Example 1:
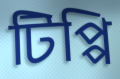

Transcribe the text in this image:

টিপ্পি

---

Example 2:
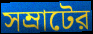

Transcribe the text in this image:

সম্রাটের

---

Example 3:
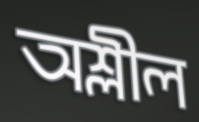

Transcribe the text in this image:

অশ্লীল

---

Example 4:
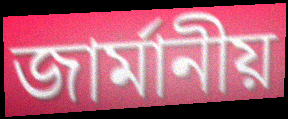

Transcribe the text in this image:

জার্মানীয়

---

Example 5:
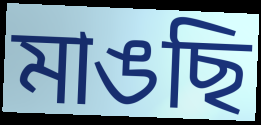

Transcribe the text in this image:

মাঙছি